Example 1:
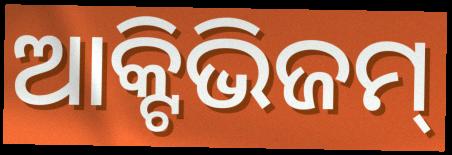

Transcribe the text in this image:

ଆକ୍ଟିଭିଜମ୍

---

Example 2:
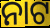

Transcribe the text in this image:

ନାଟ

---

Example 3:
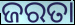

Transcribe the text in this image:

ଜରତା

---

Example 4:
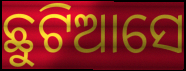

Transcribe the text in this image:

ଛୁଟିଆସେ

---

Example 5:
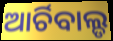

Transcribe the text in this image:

ଆର୍ଚିବାଲ୍ଡ